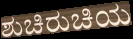
ಶುಚಿರುಚಿಯ